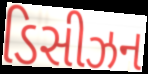
ડિસીઝન